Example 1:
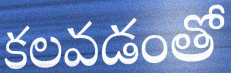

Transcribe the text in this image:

కలవడంతో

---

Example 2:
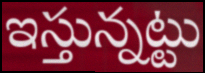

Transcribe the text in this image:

ఇస్తున్నట్టు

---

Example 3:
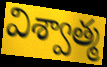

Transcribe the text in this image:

విశ్వాత్మ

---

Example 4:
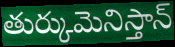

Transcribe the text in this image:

తుర్కుమెనిస్తాన్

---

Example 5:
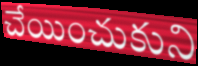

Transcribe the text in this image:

చేయించుకుని